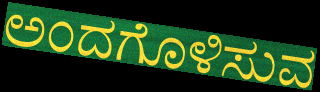
ಅಂದಗೊಳಿಸುವ